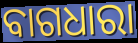
ବାଗଧାରା